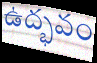
ఉద్భవం